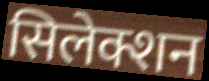
सिलेक्शन